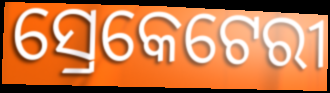
ସ୍ରେକେଟେରୀ